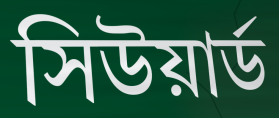
সিউয়ার্ড